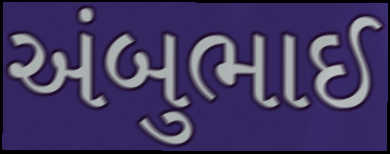
અંબુભાઈ